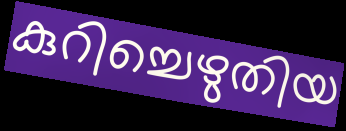
കുറിച്ചെഴുതിയ